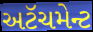
અટૅચમેન્ટ